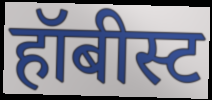
हॉबीस्ट